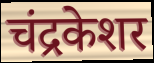
चंद्रकेशर